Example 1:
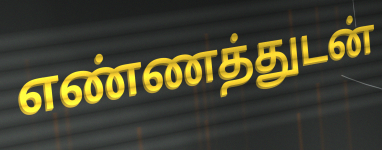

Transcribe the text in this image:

எண்ணத்துடன்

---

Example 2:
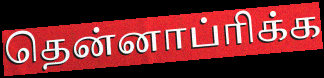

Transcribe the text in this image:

தென்னாப்ரிக்க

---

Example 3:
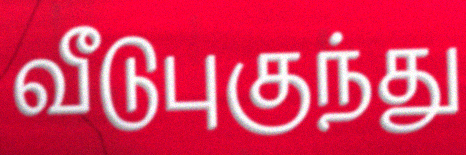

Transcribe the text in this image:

வீடுபுகுந்து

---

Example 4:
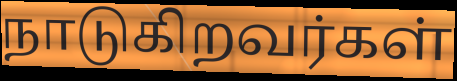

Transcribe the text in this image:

நாடுகிறவர்கள்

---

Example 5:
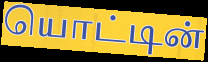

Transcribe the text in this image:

யொட்டின்